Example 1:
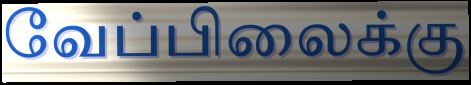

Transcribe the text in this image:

வேப்பிலைக்கு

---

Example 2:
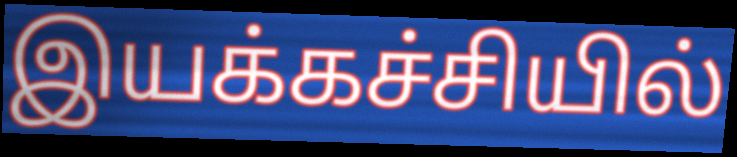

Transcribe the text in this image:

இயக்கச்சியில்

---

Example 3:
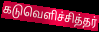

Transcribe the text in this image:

கடுவெளிச்சித்தர்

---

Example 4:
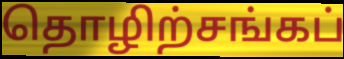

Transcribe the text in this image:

தொழிற்சங்கப்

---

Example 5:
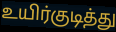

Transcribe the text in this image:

உயிர்குடித்து